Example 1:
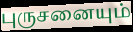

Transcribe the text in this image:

புருசனையும்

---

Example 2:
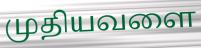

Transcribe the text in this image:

முதியவளை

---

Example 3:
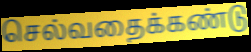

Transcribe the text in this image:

செல்வதைக்கண்டு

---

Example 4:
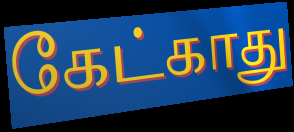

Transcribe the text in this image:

கேட்காது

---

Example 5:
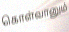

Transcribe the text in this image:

கொள்வானும்